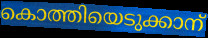
കൊത്തിയെടുക്കാന്